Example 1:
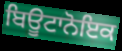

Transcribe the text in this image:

ਬਿਊਟਾਨੋਇਕ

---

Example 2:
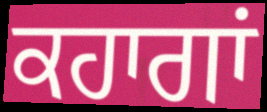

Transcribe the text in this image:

ਕਹਾਗਾਂ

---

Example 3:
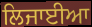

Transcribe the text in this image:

ਲਿਜਾਈਆ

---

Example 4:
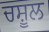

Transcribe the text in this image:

ਚਸ਼ੂਲ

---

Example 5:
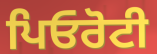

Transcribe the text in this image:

ਪਿਓਰੋਟੀ